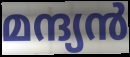
മന്ദ്യൻ